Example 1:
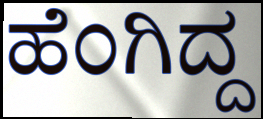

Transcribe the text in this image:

ಹೆಂಗಿದ್ದ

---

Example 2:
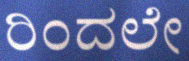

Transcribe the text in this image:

ರಿಂದಲೇ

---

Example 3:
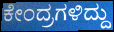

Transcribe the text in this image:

ಕೇಂದ್ರಗಳಿದ್ದು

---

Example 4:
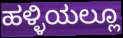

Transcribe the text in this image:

ಹಳ್ಳಿಯಲ್ಲೂ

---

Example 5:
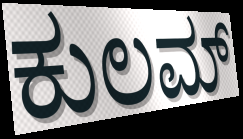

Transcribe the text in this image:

ಕುಲಮ್